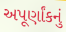
અપૂર્ણાંકનું